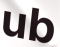
ub